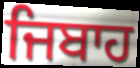
ਜਿਬਾਹ